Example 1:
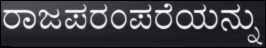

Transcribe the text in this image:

ರಾಜಪರಂಪರೆಯನ್ನು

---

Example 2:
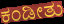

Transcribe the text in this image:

ಕಂಡೀತು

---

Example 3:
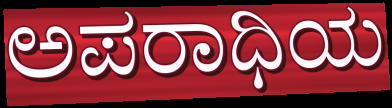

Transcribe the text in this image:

ಅಪರಾಧಿಯ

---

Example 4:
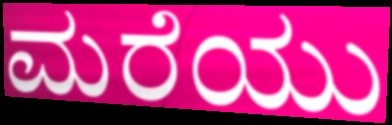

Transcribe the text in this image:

ಮರೆಯು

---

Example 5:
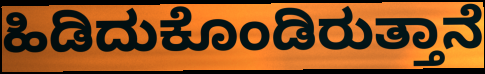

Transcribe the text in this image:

ಹಿಡಿದುಕೊಂಡಿರುತ್ತಾನೆ